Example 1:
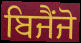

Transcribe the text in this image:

ਬਿਜੈਂਜੋ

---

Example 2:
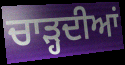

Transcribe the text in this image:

ਚਾੜ੍ਹਦੀਆਂ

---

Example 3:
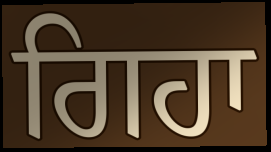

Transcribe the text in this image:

ਗਿਹਾ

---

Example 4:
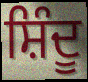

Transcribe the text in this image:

ਸ਼ਿੰਦੂ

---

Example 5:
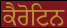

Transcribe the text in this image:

ਕੈਰੋਟਿਨ